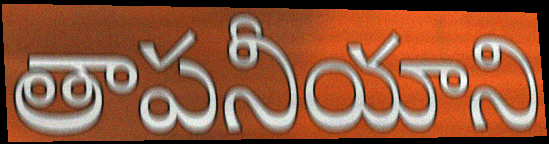
తాపనీయాని